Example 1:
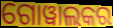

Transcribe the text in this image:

ଗୋୱାଲକର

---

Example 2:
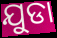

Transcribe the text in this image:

ଯୁଡା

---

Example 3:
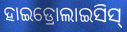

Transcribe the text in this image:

ହାଇଡ୍ରୋଲାଇସିସ୍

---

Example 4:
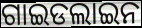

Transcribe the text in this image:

ଗାଇଡଲାଇନ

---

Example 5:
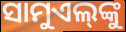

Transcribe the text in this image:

ସାମୁଏଲ୍‌ଙ୍କୁ